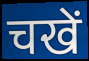
चखें